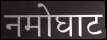
नमोघाट